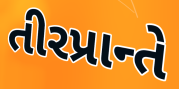
તીરપ્રાન્તે